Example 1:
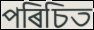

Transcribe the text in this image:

পৰিচিত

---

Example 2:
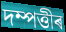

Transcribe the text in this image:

দম্পত্তীৰ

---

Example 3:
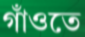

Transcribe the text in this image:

গাঁওতে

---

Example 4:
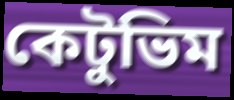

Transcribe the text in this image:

কেটুভিম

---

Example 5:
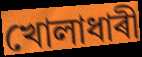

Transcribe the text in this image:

খোলাধাৰী